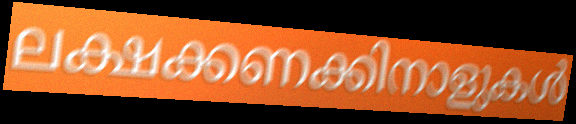
ലക്ഷക്കണക്കിനാളുകൾ